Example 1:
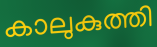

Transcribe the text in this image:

കാലുകുത്തി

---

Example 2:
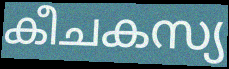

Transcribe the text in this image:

കീചകസ്യ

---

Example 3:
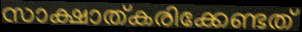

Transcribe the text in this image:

സാക്ഷാത്കരിക്കേണ്ടത്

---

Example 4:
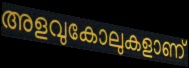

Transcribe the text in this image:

അളവുകോലുകളാണ്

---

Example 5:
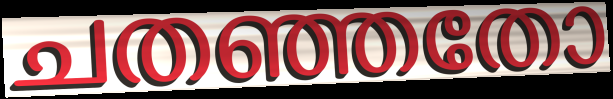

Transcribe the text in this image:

ചതഞ്ഞതോ